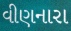
વીણનારા